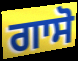
ਗਾਸੋ